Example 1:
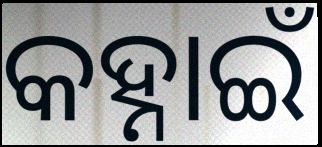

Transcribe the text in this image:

କହ୍ନାଇଁ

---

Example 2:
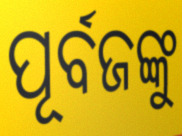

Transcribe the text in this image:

ପୂର୍ବଜଙ୍କୁ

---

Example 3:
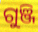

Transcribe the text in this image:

ଗୁଞ୍ଜି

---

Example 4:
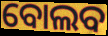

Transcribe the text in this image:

ବୋଲବ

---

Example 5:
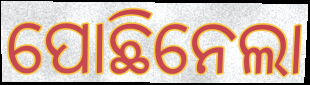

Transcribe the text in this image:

ପୋଛିନେଲା